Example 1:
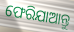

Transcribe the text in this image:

ଫେରିଯାଆନ୍ତୁ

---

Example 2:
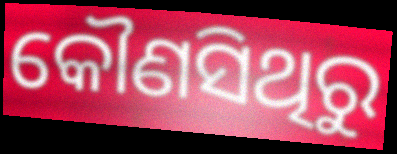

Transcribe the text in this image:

କୌଣସିଥିରୁ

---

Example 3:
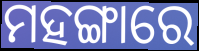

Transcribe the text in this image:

ମହଙ୍ଗାରେ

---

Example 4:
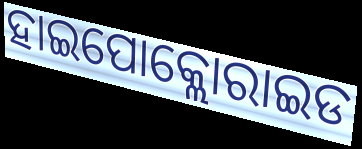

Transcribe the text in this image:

ହାଇପୋକ୍ଲୋରାଇଡ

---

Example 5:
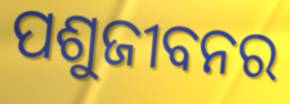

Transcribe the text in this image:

ପଶୁଜୀବନର